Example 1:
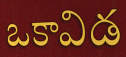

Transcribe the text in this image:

ఒకావిడ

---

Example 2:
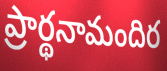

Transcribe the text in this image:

ప్రార్థనామందిర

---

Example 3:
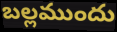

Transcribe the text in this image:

బల్లముందు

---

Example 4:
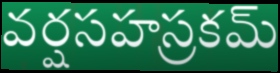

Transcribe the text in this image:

వర్షసహస్రకమ్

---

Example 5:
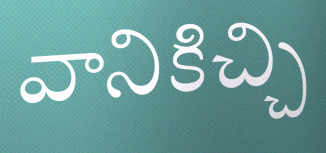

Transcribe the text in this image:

వానికిచ్చి